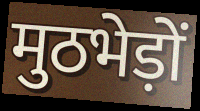
मुठभेड़ों